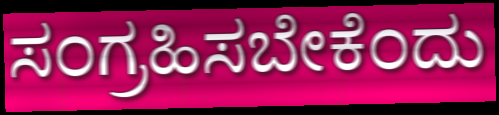
ಸಂಗ್ರಹಿಸಬೇಕೆಂದು